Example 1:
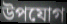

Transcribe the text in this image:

উপযোগ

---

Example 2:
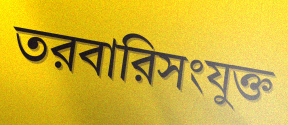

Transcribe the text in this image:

তরবারিসংযুক্ত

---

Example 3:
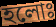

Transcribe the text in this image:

হলোঃ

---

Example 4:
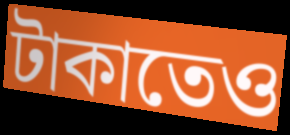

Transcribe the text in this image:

টাকাতেও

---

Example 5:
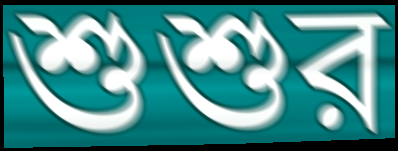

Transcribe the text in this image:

শুশুর